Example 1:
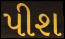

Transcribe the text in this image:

પીશ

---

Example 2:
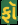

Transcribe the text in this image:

ફૉ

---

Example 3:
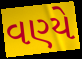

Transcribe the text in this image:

વણ્યે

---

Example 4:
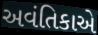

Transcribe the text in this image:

અવંતિકાએ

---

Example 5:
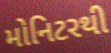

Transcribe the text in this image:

મોનિટરથી